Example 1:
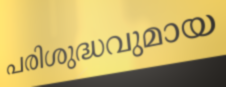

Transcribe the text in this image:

പരിശുദ്ധവുമായ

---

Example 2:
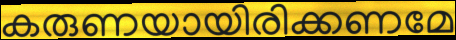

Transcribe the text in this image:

കരുണയായിരിക്കണമേ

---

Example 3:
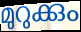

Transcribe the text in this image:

മുറുക്കും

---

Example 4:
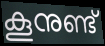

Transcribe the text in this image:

കൂനുണ്ട്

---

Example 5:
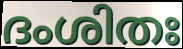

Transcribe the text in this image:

ദംശിതഃ